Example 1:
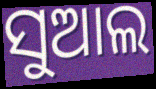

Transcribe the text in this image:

ସୁଆଲ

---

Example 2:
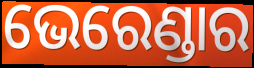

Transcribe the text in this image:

ଭେରେଣ୍ଡାର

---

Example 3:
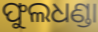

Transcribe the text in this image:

ଫୁଲଧଣ୍ଡା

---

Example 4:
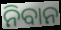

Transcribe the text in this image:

ନିବାନ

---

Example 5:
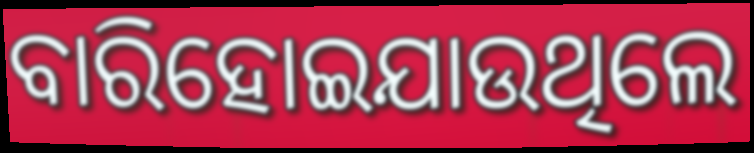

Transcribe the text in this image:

ବାରିହୋଇଯାଉଥିଲେ